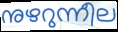
നുഴറുന്നീല